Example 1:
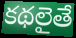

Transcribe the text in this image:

కథలైతే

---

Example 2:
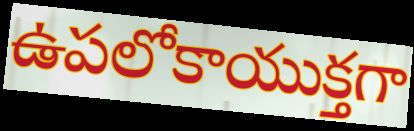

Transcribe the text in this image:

ఉపలోకాయుక్తగా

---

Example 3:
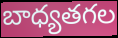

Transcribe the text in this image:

బాధ్యతగల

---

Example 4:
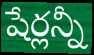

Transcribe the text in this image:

షేర్లన్నీ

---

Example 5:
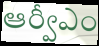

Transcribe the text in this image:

ఆర్వీఎం